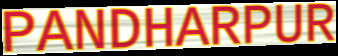
PANDHARPUR